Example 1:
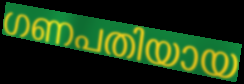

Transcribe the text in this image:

ഗണപതിയായ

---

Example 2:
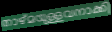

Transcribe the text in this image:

താഴ്മയുള്ളവനാക്കി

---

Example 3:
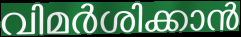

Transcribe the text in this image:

വിമർശിക്കാൻ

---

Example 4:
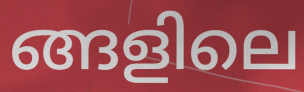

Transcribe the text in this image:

ങ്ങളിലെ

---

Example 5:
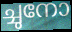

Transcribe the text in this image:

ച്ചുനോ